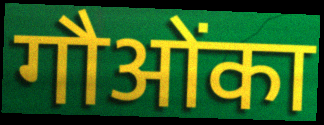
गौओंका